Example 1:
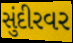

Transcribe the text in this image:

સુંદીરવર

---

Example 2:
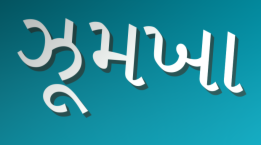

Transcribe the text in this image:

ઝૂમખા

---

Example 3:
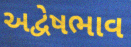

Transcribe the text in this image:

અદ્વેષભાવ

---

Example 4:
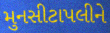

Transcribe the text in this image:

મુનસીટાપલીને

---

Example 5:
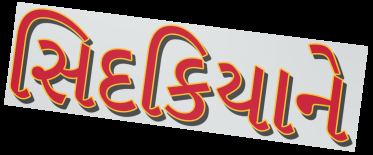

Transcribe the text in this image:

સિદકિયાને